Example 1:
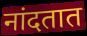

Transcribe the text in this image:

नांदतात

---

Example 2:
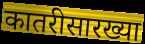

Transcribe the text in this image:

कातरीसारख्या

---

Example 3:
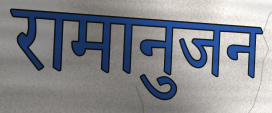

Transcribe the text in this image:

रामानुजन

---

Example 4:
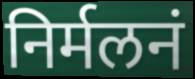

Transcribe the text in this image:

निर्मलनं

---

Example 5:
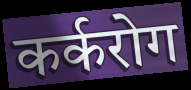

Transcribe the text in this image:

कर्करोग